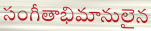
సంగీతాభిమానులైన